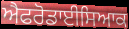
ਐਫਰੋਡਾਈਸਿਆਕ